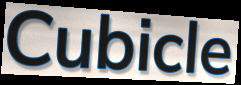
Cubicle